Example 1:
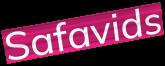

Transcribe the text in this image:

Safavids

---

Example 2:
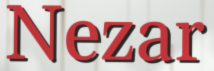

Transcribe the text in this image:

Nezar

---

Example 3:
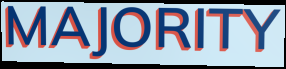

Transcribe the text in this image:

MAJORITY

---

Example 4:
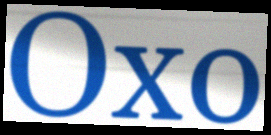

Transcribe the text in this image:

Oxo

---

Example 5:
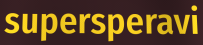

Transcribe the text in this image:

supersperavi